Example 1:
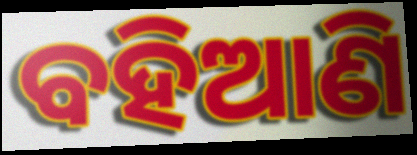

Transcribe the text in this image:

ବହିଆଣି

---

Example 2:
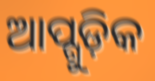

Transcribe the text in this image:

ଆପ୍ଗୁଡ଼ିକ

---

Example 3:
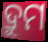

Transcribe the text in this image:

ଦ୍ରୁମ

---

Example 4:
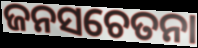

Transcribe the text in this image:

ଜନସଚେତନା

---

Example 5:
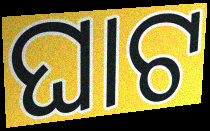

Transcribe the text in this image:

ଘାଟ